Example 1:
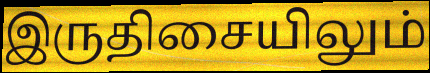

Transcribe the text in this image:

இருதிசையிலும்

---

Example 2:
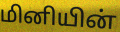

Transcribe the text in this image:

மினியின்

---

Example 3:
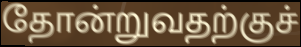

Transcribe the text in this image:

தோன்றுவதற்குச்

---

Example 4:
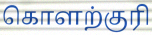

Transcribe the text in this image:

கொளற்குரி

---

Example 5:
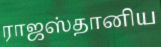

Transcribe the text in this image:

ராஜஸ்தானிய